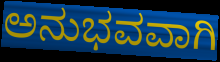
ಅನುಭವವಾಗಿ